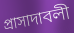
প্রাসাদাবলী